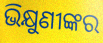
ଭିକ୍ଷୁଣୀଙ୍କର